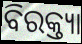
ବିରକ୍ତ୍ୟା